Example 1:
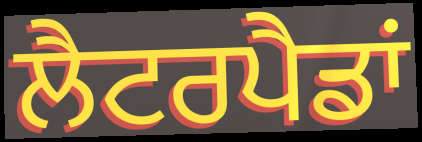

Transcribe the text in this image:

ਲੈਟਰਪੈਡਾਂ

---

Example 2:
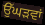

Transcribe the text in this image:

ਉੱਘੜਵਾਂ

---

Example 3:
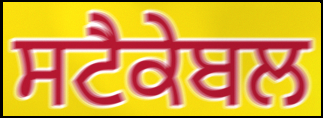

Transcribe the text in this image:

ਸਟੈਕੇਬਲ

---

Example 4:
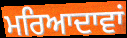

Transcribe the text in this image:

ਮਰਿਆਦਾਵਾਂ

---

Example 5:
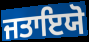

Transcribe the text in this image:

ਜਤਾਇਯੋ